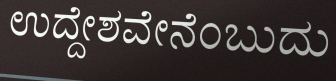
ಉದ್ದೇಶವೇನೆಂಬುದು